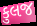
કુલજ